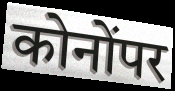
कोनोंपर